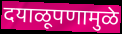
दयाळूपणामुळे